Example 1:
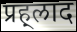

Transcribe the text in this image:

प्रह्‌लाद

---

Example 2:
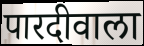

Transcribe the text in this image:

पारदीवाला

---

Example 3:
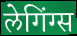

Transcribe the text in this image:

लेगिंग्स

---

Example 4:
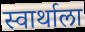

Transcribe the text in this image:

स्वार्थाला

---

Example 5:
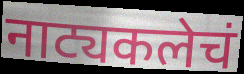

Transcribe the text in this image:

नाट्यकलेचं